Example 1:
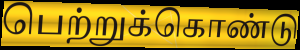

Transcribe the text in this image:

பெற்றுக்கொண்டு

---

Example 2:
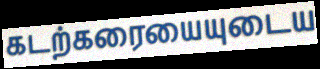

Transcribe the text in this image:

கடற்கரையையுடைய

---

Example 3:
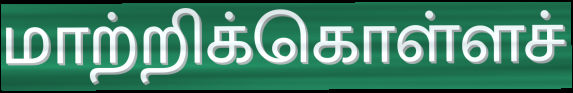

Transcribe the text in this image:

மாற்றிக்கொள்ளச்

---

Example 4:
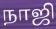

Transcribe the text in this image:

நாஜி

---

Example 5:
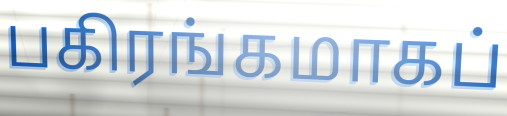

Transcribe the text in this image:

பகிரங்கமாகப்